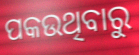
ପକଉଥିବାରୁ